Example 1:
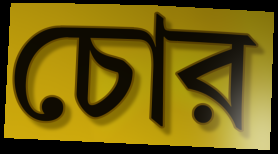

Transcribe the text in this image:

চোর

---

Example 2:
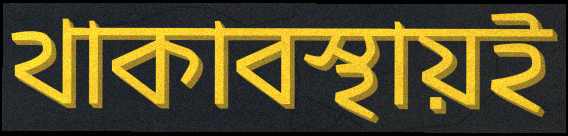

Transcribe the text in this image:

থাকাবস্থায়ই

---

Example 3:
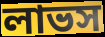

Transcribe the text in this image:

লাভস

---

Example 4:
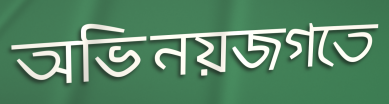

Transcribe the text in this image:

অভিনয়জগতে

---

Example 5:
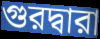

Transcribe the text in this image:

গুরদ্বারা